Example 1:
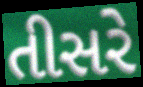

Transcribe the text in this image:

તીસરે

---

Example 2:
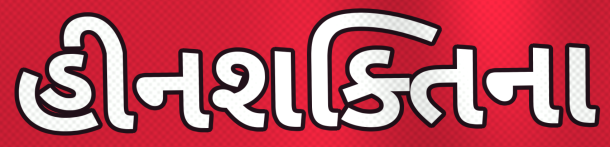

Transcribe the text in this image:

હીનશક્તિના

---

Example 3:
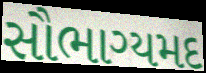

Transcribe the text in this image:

સૌભાગ્યમદ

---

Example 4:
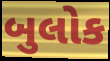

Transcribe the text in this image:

બુલોક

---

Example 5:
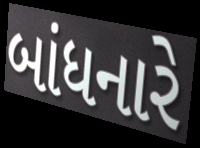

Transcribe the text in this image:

બાંધનારે